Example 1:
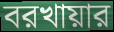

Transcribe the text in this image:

বরখায়ার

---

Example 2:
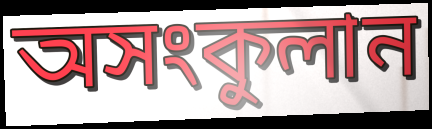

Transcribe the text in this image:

অসংকুলান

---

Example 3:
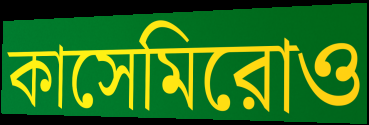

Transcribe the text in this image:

কাসেমিরোও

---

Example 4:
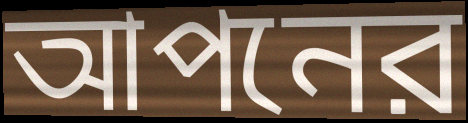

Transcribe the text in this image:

আপনের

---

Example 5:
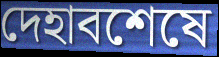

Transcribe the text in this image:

দেহাবশেষে